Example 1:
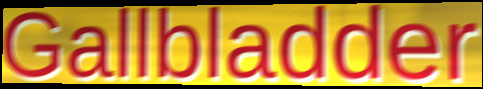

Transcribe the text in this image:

Gallbladder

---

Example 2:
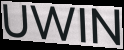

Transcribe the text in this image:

UWIN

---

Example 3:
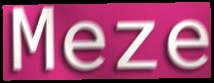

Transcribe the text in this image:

Meze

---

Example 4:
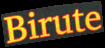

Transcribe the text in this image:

Birute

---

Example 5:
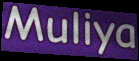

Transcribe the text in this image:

Muliya